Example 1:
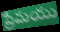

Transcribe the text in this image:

ప్రేమయు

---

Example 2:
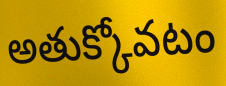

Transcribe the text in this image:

అతుక్కోవటం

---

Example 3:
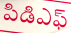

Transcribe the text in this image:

పిడిఎఫ్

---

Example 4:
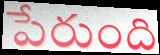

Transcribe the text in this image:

పేరుంది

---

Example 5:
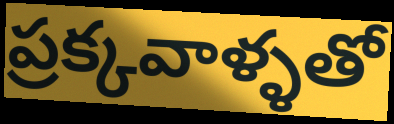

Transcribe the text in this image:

ప్రక్కవాళ్ళతో